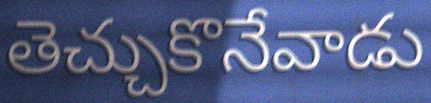
తెచ్చుకొనేవాడు